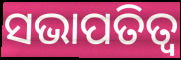
ସଭାପତିତ୍ବ